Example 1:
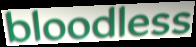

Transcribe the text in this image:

bloodless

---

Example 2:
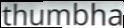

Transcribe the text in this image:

thumbha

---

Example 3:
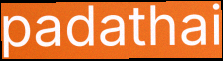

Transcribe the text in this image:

padathai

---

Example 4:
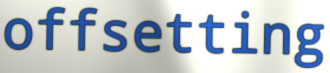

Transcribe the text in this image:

offsetting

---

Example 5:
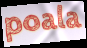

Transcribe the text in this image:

poala